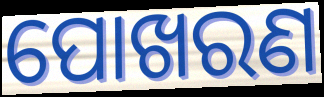
ପୋଖରଣ